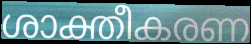
ശാക്തീകരണ